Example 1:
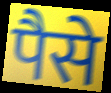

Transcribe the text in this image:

पैसे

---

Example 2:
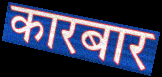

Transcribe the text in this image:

कारबार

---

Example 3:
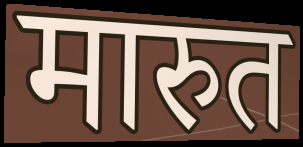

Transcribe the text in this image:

मारुत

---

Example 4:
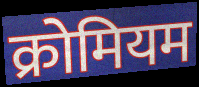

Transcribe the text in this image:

क्रोमियम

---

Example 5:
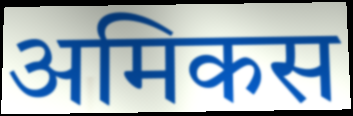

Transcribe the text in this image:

अमिकस